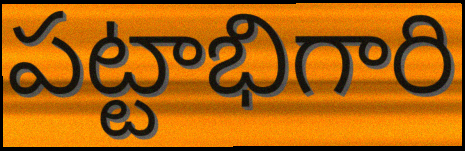
పట్టాభిగారి